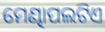
ମେଣ୍ଢାପଲଟିଏ